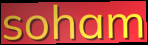
soham